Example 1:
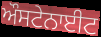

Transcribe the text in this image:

ਔਸਟੇਨਾਈਟ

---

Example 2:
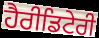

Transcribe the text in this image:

ਹੈਰੀਡਿਟੇਰੀ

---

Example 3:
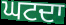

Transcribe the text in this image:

ਘਟਦਾ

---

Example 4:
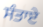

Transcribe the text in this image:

ਸੰਤਾਏ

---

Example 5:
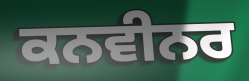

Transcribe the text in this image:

ਕਨਵੀਨਰ